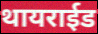
थायराईड